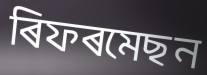
ৰিফৰমেছন